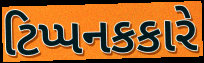
ટિપ્પનકકારે